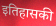
इतिहासकी